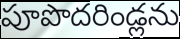
పూపొదరిండ్లను